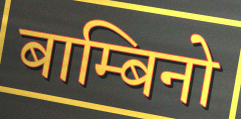
बाम्बिनो